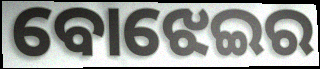
ବୋଝେଇର